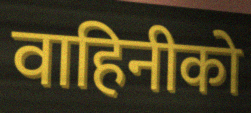
वाहिनीको